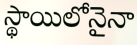
స్థాయిలోనైనా